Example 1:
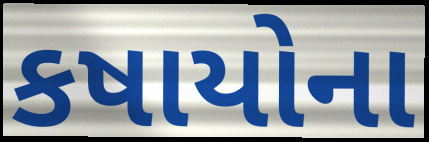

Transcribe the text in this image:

કષાયોના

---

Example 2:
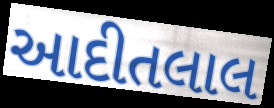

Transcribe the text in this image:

આદીતલાલ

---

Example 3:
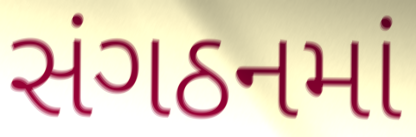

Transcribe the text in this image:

સંગઠનમાં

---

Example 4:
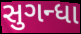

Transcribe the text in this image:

સુગન્ધા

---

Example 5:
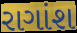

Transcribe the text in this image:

રાગાંશ